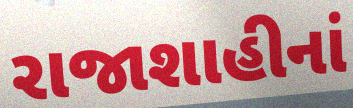
રાજાશાહીનાં